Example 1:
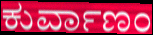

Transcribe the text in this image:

ಕುರ್ವಾಣಂ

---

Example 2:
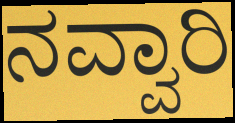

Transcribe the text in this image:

ನವ್ವಾರಿ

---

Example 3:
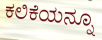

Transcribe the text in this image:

ಕಲಿಕೆಯನ್ನೂ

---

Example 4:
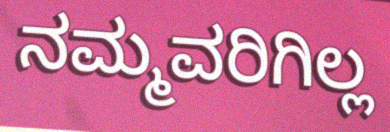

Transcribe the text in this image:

ನಮ್ಮವರಿಗಿಲ್ಲ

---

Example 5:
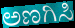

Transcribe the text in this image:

ಅಣಗಿಸಿ